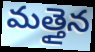
మత్తైన